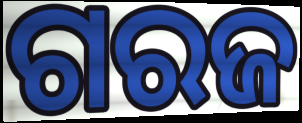
ଗରଜ